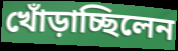
খোঁড়াচ্ছিলেন